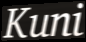
Kuni